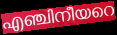
എഞ്ചിനീയറെ